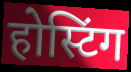
होस्टिंग